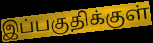
இப்பகுதிக்குள்